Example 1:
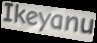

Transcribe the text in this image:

Ikeyanu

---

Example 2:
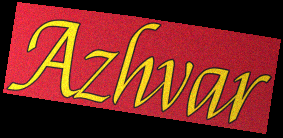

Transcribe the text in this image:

Azhvar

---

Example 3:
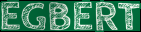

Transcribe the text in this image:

EGBERT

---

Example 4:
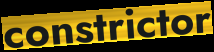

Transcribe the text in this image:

constrictor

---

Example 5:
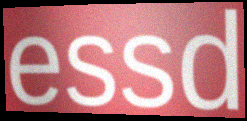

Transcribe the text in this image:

essd